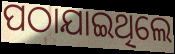
ପଠାଯାଇଥିଲେ